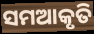
ସମଆକୃତି